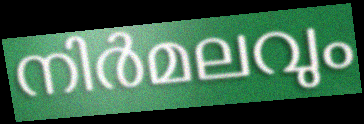
നിർമലവും